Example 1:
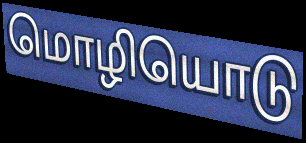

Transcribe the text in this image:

மொழியொடு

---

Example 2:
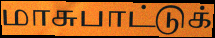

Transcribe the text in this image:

மாசுபாட்டுக்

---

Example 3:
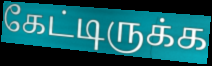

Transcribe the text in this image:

கேட்டிருக்க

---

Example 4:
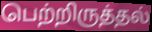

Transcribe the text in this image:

பெற்றிருத்தல்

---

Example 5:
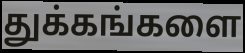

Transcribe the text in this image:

துக்கங்களை